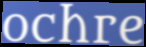
ochre